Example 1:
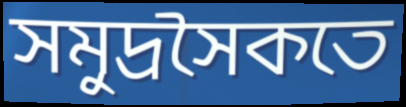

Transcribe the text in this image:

সমুদ্রসৈকতে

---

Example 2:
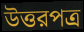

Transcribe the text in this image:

উত্তরপত্র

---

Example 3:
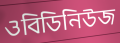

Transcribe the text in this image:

ওবিডিনিউজ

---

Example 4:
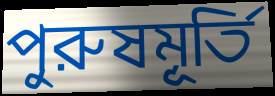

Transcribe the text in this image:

পুরুষমূর্তি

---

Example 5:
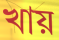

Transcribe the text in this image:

খায়